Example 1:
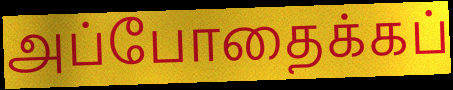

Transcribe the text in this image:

அப்போதைக்கப்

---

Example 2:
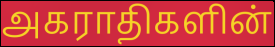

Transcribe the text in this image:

அகராதிகளின்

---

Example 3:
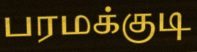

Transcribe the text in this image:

பரமக்குடி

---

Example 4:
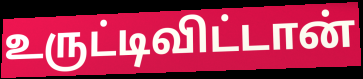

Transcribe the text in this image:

உருட்டிவிட்டான்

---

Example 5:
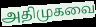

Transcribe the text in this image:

அதிமுகவை